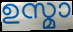
ഉസ്മാ